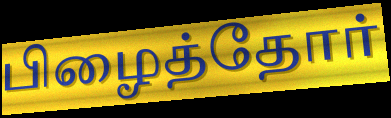
பிழைத்தோர்